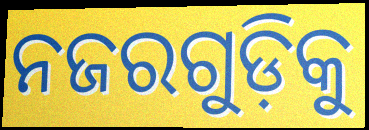
ନଜରଗୁଡ଼ିକୁ